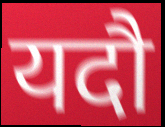
यदौ